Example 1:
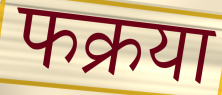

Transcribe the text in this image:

फक्रया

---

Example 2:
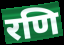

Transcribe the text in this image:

रणि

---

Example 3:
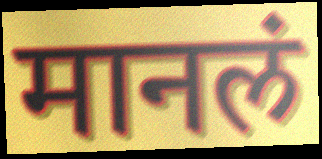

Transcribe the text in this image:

मानलं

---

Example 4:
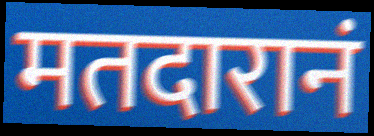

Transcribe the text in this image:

मतदारानं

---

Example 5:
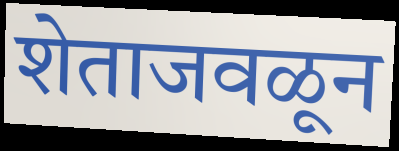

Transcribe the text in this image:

शेताजवळून